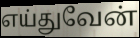
எய்துவேன்